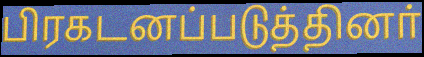
பிரகடனப்படுத்தினர்